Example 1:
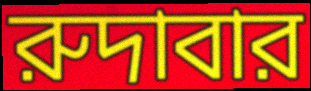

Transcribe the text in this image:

রুদাবার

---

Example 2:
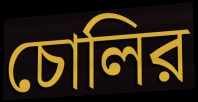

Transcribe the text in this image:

চোলির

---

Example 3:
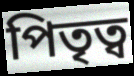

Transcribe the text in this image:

পিতৃত্ব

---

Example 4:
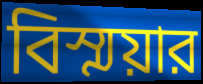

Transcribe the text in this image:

বিস্ময়ার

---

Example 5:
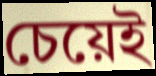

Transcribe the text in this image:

চেয়েই